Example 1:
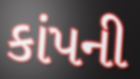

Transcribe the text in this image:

કાંપની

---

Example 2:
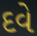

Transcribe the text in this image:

દવે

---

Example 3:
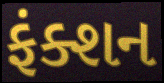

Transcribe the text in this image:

ફંક્શન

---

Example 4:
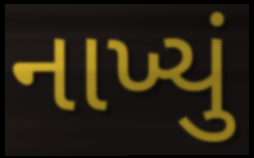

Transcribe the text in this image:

નાખ્યું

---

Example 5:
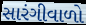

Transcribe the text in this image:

સારંગીવાળો